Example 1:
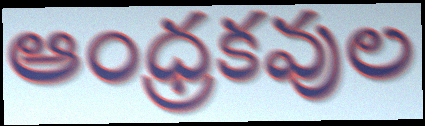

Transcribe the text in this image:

ఆంధ్రకవుల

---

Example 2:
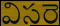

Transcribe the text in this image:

విసరె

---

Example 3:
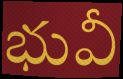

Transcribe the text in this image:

భువీ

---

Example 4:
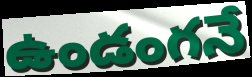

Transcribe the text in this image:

ఉండంగనే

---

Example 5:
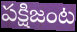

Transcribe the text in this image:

పక్షిజంట